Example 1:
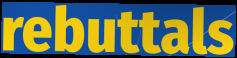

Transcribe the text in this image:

rebuttals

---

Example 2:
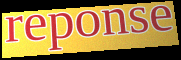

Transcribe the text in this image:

reponse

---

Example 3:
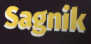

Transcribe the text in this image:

Sagnik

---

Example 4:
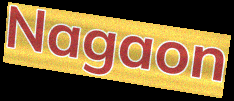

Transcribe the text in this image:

Nagaon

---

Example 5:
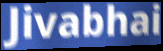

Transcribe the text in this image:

Jivabhai